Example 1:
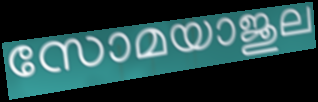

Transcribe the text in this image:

സോമയാജുല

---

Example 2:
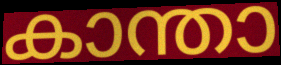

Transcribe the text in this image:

കാന്താ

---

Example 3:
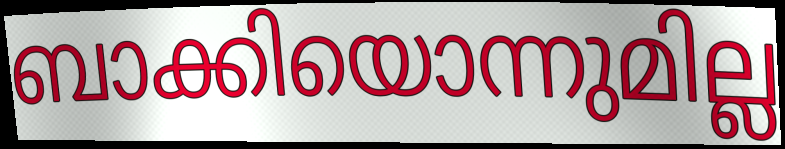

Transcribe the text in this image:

ബാക്കിയൊന്നുമില്ല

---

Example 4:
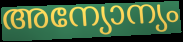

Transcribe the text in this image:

അന്യോന്യം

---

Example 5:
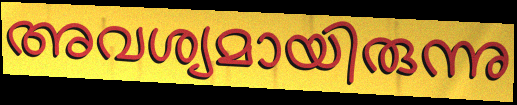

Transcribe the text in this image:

അവശ്യമായിരുന്നു